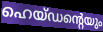
ഹെയ്ഡന്റെയും